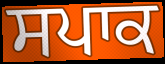
ਸਪਾਕ